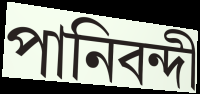
পানিবন্দী